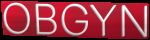
OBGYN